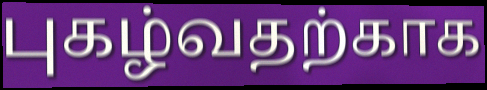
புகழ்வதற்காக